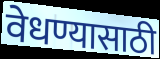
वेधण्यासाठी